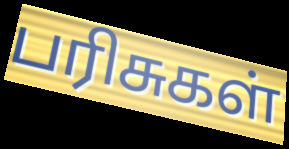
பரிசுகள்